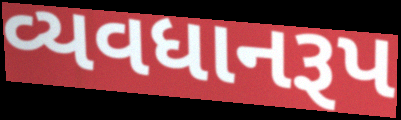
વ્યવધાનરૂપ